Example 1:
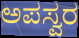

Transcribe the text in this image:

ಅಪಸ್ವರ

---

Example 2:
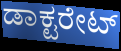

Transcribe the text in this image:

ಡಾಕ್ಟರೇಟ್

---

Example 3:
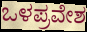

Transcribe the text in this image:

ಒಳಪ್ರವೇಶ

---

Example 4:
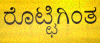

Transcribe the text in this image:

ರೊಟ್ಟಿಗಿಂತ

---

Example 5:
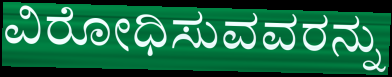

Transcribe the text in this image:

ವಿರೋಧಿಸುವವರನ್ನು